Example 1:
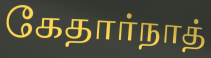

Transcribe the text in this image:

கேதார்நாத்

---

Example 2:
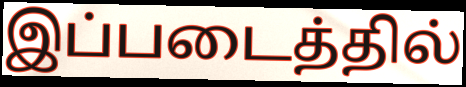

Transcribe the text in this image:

இப்படைத்தில்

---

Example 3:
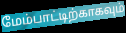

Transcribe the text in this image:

மேம்பாட்டிற்காகவும்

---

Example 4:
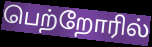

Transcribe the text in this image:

பெற்றோரில்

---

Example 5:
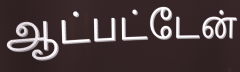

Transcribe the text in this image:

ஆட்பட்டேன்